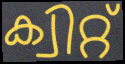
ക്വിറ്റ്